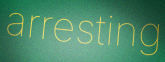
arresting